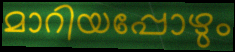
മാറിയപ്പോഴും